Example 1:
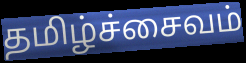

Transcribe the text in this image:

தமிழ்ச்சைவம்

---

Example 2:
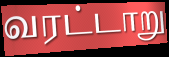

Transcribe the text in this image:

வரட்டாறு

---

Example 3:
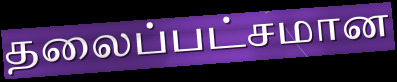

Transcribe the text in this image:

தலைப்பட்சமான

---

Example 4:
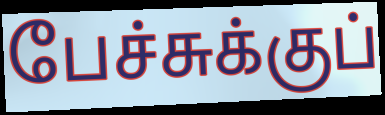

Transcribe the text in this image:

பேச்சுக்குப்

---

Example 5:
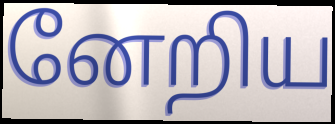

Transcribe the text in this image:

னேறிய